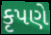
કૃપણે